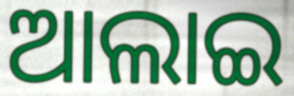
ଆଲାଇ